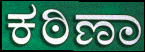
ಕಠಿಣಾ